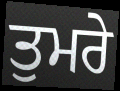
ਤੁਮਰੇ